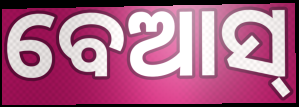
ବେଆସ୍